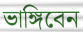
ভাঙ্গিবেন